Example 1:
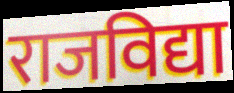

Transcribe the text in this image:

राजविद्या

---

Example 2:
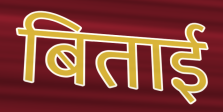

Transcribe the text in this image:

बिताई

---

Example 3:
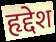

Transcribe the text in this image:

हृद्देश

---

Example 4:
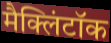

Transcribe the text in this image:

मैक्लिंटॉक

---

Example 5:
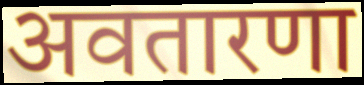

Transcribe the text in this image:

अवतारणा